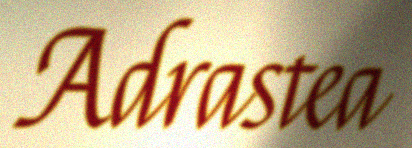
Adrastea